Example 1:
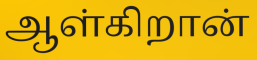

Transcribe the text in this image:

ஆள்கிறான்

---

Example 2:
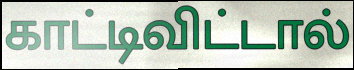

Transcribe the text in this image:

காட்டிவிட்டால்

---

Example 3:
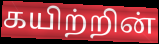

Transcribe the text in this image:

கயிற்றின்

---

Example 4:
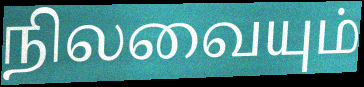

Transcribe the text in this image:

நிலவையும்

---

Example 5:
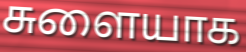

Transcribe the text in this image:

சுளையாக